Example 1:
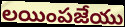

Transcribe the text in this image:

లయింపజేయు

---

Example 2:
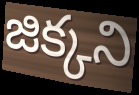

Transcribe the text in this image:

జిక్కని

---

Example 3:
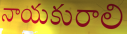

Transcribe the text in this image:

నాయకురాలి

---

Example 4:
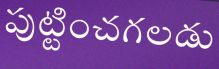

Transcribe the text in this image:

పుట్టించగలడు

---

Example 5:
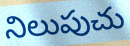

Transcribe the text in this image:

నిలుపుచు